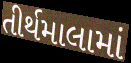
તીર્થમાલામાં